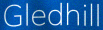
Gledhill